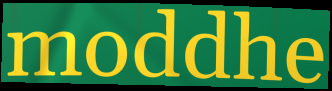
moddhe